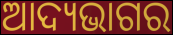
ଆଦ୍ୟଭାଗର